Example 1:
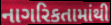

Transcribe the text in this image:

નાગરિકતામાંથી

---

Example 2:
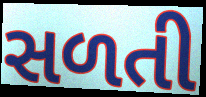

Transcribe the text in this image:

સળતી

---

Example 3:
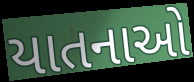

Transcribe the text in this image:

યાતનાઓ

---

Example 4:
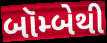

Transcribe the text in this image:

બૉમ્બેથી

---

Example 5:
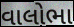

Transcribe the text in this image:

વાલોભા